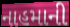
નાહમાની